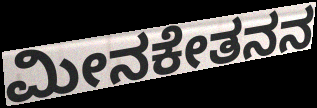
ಮೀನಕೇತನನ